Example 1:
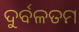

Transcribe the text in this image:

ଦୁର୍ବଳତମ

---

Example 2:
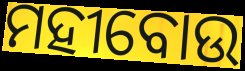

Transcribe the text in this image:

ମହୀବୋଉ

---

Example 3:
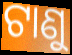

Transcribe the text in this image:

ଟାଣୁ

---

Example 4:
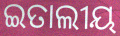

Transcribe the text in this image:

ଇତାଲୀୟ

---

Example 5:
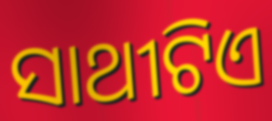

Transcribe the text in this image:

ସାଥୀଟିଏ